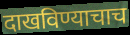
दाखविण्याचाच